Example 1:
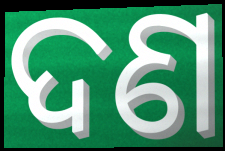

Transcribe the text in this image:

ଦଣ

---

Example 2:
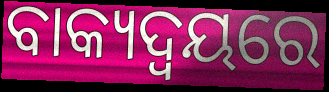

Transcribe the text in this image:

ବାକ୍ୟଦ୍ଵୟରେ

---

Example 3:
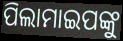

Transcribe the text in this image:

ପିଲାମାଇପଙ୍କୁ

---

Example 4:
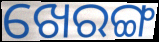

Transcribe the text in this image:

ଖେରଙ୍ଗ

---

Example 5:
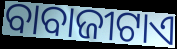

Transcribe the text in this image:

ବାବାଜୀଟାଏ